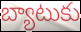
బ్యాటుకు